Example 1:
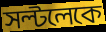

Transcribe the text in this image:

সল্টলেকে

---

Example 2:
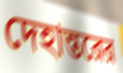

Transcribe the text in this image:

দেহান্তরের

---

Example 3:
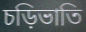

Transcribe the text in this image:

চড়িভাতি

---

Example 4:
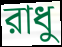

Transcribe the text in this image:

রাধু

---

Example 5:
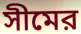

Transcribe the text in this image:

সীমের